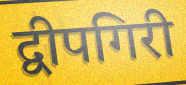
द्वीपगिरी